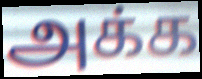
அக்க